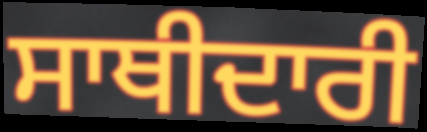
ਸਾਥੀਦਾਰੀ